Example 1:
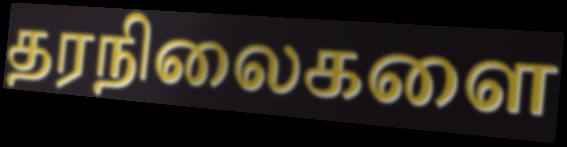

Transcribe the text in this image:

தரநிலைகளை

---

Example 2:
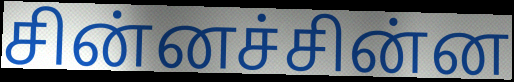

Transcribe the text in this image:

சின்னச்சின்ன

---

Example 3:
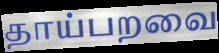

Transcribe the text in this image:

தாய்பறவை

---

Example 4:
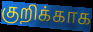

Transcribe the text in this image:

குறிக்காக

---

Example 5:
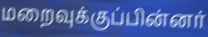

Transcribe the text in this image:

மறைவுக்குப்பின்னர்